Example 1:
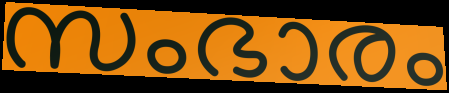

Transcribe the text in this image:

സംഭാരം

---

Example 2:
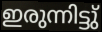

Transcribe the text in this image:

ഇരുന്നിട്ടു്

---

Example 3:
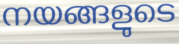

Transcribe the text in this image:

നയങ്ങളുടെ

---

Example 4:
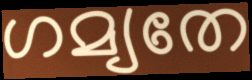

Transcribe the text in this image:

ഗമ്യതേ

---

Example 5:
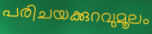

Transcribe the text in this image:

പരിചയക്കുറവുമൂലം